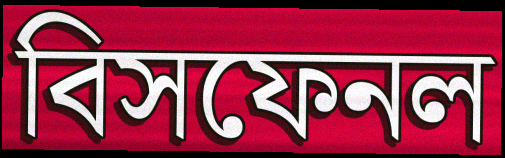
বিসফেনল